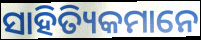
ସାହିତ୍ୟିକମାନେ